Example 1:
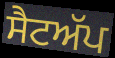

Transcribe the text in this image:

ਸੈਟਅੱਪ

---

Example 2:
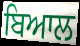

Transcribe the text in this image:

ਬਿਆਲ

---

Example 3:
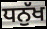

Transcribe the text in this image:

ਧਨੁੱਖ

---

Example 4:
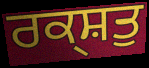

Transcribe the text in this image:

ਰਕ੍ਸ਼ਤੁ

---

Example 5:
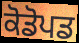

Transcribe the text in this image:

ਕੋਡੋਪਡ